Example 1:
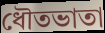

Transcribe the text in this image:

ধৌতভাতা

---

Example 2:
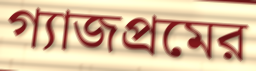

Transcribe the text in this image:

গ্যাজপ্রমের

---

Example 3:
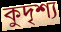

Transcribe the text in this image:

কুদৃশ্য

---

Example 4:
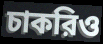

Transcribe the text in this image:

চাকরিও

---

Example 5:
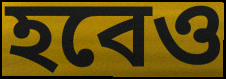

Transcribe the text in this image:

হবেও